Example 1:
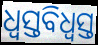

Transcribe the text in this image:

ଧ୍ୱସ୍ତବିଧ୍ୱସ୍ତ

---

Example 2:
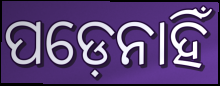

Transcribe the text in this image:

ପଡ଼େନାହିଁ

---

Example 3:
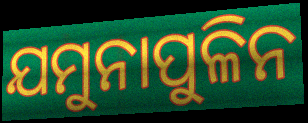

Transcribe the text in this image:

ଯମୁନାପୁଳିନ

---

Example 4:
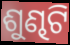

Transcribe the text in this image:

ଶୁଣ୍ଢଟି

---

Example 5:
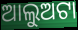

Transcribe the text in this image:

ଆଲୁଅଟା